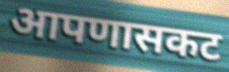
आपणासकट